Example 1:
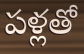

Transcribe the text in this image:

పళ్లతో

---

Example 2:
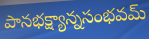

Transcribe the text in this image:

పానభక్ష్యాన్నసంభవమ్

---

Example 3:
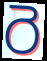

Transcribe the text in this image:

రె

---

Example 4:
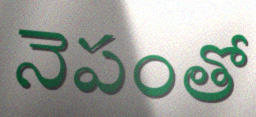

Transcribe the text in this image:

నెపంతో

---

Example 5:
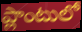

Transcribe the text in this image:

ప్లాంటులో